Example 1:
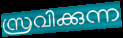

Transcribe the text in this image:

സ്രവിക്കുന്ന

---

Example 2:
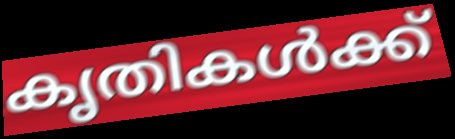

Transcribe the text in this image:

കൃതികൾക്ക്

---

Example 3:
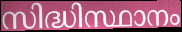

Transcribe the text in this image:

സിദ്ധിസ്ഥാനം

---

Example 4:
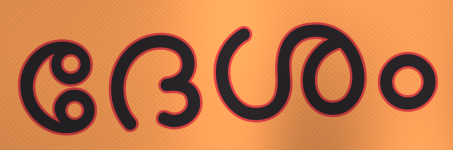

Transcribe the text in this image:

ദേശം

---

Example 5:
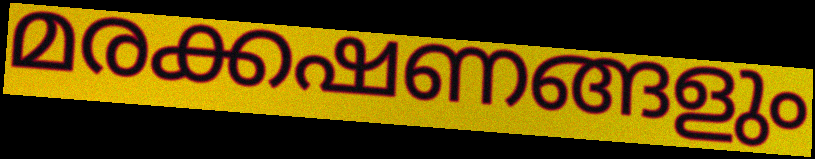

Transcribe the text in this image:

മരക്കഷണങ്ങളും